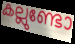
കല്ലുണ്ടോ